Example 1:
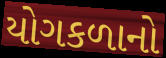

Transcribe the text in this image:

યોગકળાનો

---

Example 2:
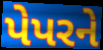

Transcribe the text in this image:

પેપરને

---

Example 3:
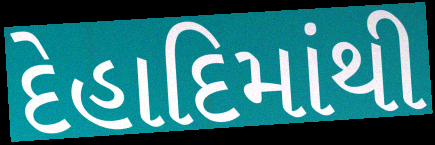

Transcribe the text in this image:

દેહાદિમાંથી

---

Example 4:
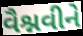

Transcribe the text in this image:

વૈશ્નવીને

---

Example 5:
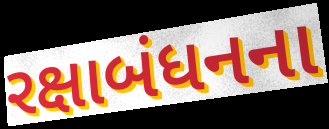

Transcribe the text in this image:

રક્ષાબંધનના